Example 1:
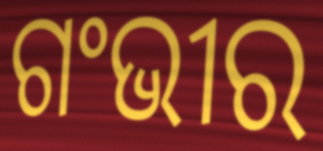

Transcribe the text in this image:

ଗଂଭୀର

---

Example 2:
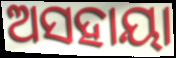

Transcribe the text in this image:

ଅସହାୟା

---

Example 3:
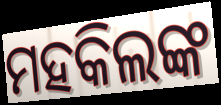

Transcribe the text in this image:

ମହକିଲଙ୍କ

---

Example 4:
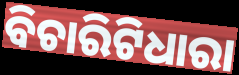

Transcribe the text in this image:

ବିଚାରିଟିଧାରା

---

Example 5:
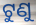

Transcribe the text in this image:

ଟୁଣୁ